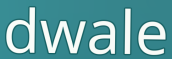
dwale